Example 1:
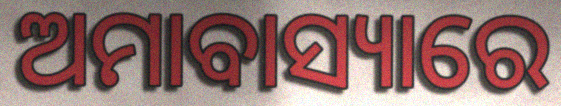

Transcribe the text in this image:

ଅମାବାସ୍ୟାରେ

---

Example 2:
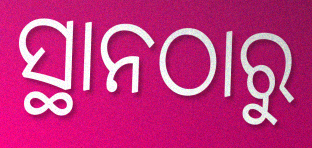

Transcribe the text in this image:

ସ୍ଥାନଠାରୁ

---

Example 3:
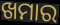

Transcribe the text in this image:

ଖମାର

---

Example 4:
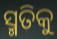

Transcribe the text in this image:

ସ୍ମତିକୁ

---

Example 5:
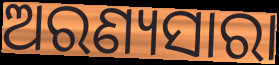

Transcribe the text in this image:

ଅରଣ୍ୟସାରା